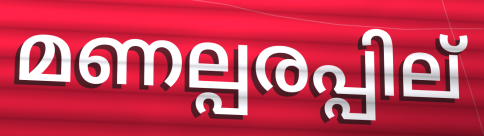
മണല്പരപ്പില്